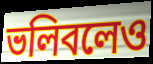
ভলিবলেও